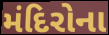
મંદિરોના